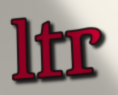
ltr